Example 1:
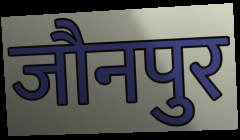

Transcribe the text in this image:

जौनपुर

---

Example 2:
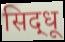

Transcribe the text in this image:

सिद्धू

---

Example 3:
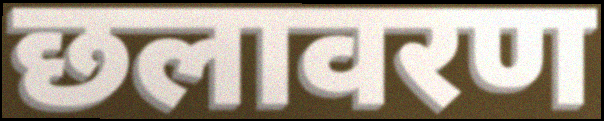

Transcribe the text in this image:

छलावरण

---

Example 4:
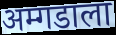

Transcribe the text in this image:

अम्गडाला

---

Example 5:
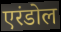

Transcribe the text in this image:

एरंडोल